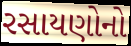
રસાયણોનો